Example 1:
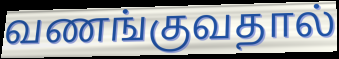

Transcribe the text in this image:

வணங்குவதால்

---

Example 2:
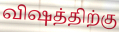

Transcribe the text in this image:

விஷத்திற்கு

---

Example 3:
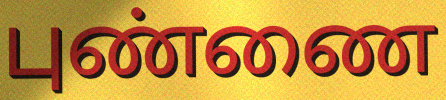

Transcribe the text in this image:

புண்ணை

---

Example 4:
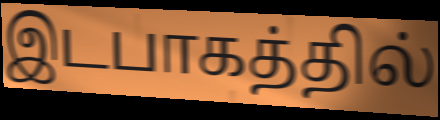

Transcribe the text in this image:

இடபாகத்தில்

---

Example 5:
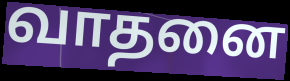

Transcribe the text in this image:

வாதனை